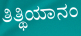
ತಿತ್ಥಿಯಾನಂ